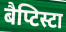
बैप्टिस्टा